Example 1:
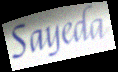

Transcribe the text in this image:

Sayeda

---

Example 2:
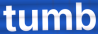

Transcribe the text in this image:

tumb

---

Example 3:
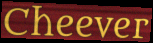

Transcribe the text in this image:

Cheever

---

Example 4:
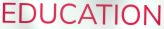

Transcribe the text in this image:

EDUCATION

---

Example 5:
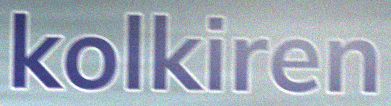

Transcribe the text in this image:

kolkiren